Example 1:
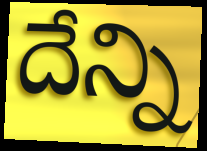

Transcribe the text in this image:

దేన్ని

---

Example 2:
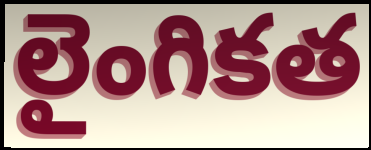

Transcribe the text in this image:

లైంగికత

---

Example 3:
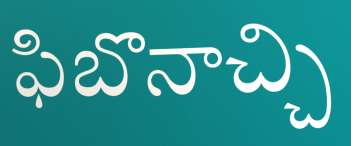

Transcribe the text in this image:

ఫిబొనాచ్చి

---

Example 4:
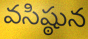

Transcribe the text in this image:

వసిష్ఠున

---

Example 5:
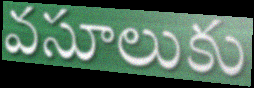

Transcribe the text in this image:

వసూలుకు